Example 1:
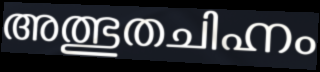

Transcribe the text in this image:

അത്ഭുതചിഹ്നം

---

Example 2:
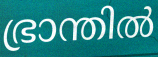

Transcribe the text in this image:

ഭ്രാന്തിൽ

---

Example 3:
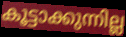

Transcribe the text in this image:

കൂട്ടാക്കുന്നില്ല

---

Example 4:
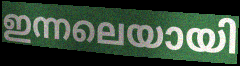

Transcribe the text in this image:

ഇന്നലെയായി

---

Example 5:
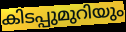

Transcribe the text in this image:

കിടപ്പുമുറിയും